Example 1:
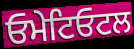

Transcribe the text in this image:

ਓਮੇਟਿਓਟਲ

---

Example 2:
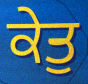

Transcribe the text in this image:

ਕੇਤੁ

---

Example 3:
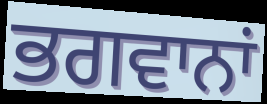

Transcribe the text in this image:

ਭਗਵਾਨਾਂ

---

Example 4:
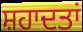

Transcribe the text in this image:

ਸ਼ਹਾਦਤਾਂ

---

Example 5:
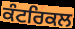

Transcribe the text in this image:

ਕੰਟਰਿਕਲ